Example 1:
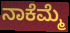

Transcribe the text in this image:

ನಾಕೆಮ್ಮೆ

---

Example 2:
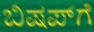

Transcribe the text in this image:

ಬಿಷಪ್‌ಗೆ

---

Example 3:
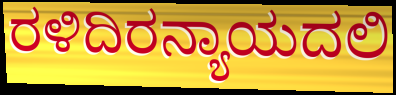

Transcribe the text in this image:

ರಳಿದಿರನ್ಯಾಯದಲಿ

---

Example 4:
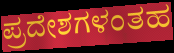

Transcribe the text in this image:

ಪ್ರದೇಶಗಳಂತಹ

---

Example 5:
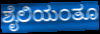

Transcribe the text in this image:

ಶೈಲಿಯಂತೂ